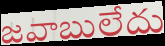
జవాబులేదు